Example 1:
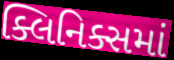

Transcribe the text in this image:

ક્લિનિક્સમાં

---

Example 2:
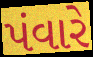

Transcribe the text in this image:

પંવારે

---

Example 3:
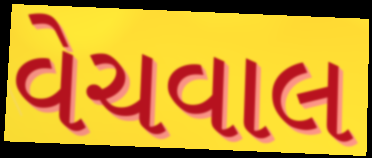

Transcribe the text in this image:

વેચવાલ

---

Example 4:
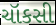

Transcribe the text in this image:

ચૉકસી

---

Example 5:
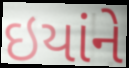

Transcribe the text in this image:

ઇયાંને